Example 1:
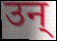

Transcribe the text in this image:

उन्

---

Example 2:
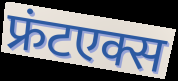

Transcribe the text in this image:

फ्रंटएक्स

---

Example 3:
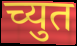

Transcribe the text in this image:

च्‍युत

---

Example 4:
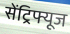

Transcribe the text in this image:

सेंट्रिफ्यूज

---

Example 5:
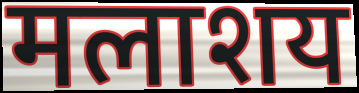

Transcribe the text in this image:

मलाशय